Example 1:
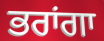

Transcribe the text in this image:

ਭਰਾਂਗਾ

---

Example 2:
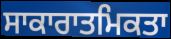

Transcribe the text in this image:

ਸਾਕਾਰਾਤਮਿਕਤਾ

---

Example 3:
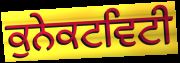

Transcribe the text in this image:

ਕੁਨੇਕਟਵਿਟੀ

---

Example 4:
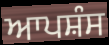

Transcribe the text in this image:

ਆਪਸ਼ੰਸ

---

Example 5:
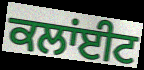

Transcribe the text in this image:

ਕਲਾਂਈਟ